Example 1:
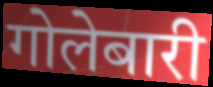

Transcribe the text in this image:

गोलेबारी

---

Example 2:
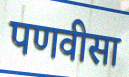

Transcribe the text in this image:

पणवीसा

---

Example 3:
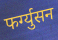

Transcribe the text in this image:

फर्ग्युसन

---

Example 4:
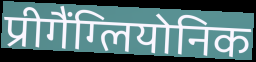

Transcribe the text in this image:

प्रीगैंग्लियोनिक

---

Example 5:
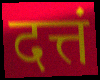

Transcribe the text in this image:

दत्तं